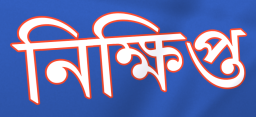
নিক্ষিপ্ত